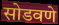
सोडवणे